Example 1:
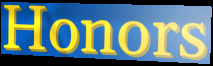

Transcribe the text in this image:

Honors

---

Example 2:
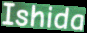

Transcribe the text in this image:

Ishida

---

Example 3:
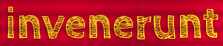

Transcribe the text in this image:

invenerunt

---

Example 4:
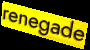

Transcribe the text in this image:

renegade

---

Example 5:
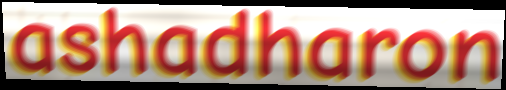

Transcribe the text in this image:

ashadharon